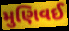
મુણિવઈ